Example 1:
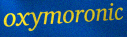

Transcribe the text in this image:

oxymoronic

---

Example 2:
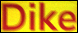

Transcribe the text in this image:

Dike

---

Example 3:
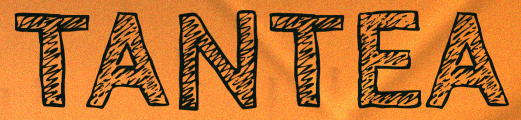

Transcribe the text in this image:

TANTEA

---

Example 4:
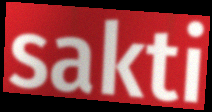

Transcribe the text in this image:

sakti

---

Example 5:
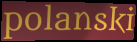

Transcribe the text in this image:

polanski